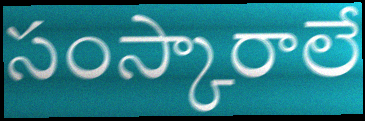
సంస్కారాలే